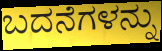
ಬದನೆಗಳನ್ನು